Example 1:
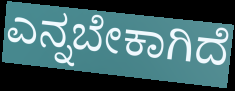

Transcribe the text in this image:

ಎನ್ನಬೇಕಾಗಿದೆ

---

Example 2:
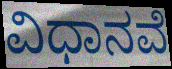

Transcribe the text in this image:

ವಿಧಾನವೆ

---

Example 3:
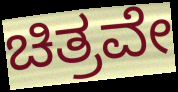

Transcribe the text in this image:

ಚಿತ್ರವೇ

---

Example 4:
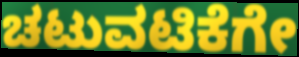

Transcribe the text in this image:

ಚಟುವಟಿಕೆಗೇ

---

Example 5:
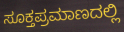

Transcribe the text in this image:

ಸೂಕ್ತಪ್ರಮಾಣದಲ್ಲಿ